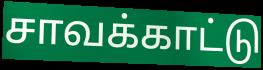
சாவக்காட்டு